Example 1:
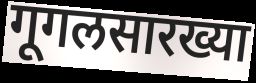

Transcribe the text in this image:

गूगलसारख्या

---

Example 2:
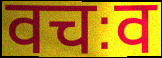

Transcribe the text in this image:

वचःव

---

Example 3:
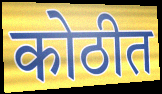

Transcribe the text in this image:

कोठीत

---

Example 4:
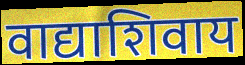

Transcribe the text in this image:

वाद्याशिवाय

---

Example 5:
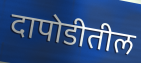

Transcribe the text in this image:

दापोडीतील